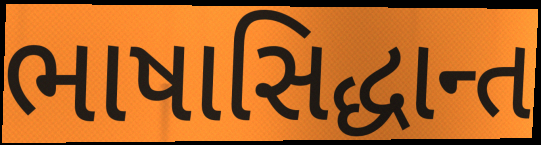
ભાષાસિદ્ધાન્ત